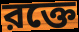
রক্তে